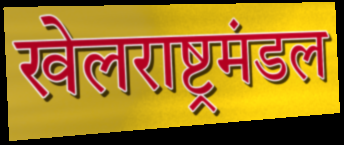
खेलराष्ट्रमंडल